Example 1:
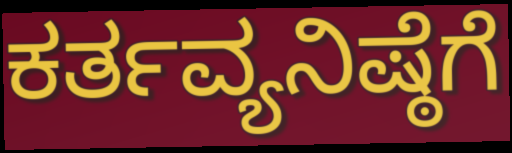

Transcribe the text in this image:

ಕರ್ತವ್ಯನಿಷ್ಠೆಗೆ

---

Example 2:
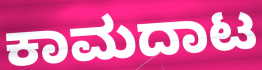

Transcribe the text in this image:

ಕಾಮದಾಟ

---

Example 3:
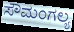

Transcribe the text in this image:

ಸೌಮಂಗಲ್ಯ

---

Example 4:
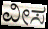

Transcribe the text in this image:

ವೀಸ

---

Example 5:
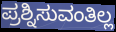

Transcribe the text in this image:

ಪ್ರಶ್ನಿಸುವಂತಿಲ್ಲ